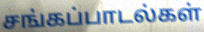
சங்கப்பாடல்கள்